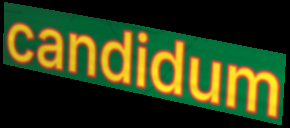
candidum